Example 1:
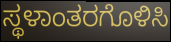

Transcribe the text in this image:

ಸ್ಥಳಾಂತರಗೊಳಿಸಿ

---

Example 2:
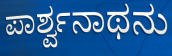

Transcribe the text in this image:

ಪಾರ್ಶ್ವನಾಥನು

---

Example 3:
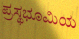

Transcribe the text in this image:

ಪ್ರಸ್ಥಭೂಮಿಯ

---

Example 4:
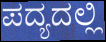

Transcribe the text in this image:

ಪದ್ಯದಲ್ಲಿ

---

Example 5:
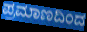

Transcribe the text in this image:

ಪ್ರಮಾಣದಿಂದ